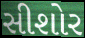
સીશોર